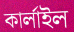
কার্লাইল